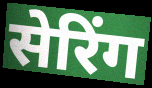
सेरिंग